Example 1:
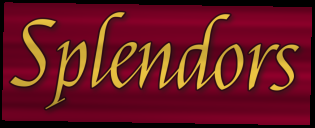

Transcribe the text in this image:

Splendors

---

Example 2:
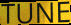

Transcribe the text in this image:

TUNE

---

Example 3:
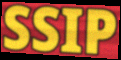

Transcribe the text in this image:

SSIP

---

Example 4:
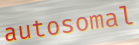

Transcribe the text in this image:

autosomal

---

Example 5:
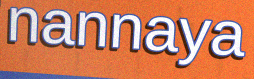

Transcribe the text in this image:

nannaya